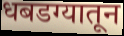
धबडग्यातून